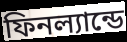
ফিনল্যান্ডে